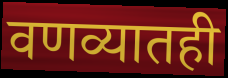
वणव्यातही